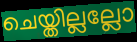
ചെയ്തില്ലല്ലോ